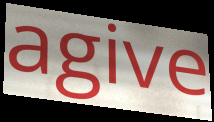
agive